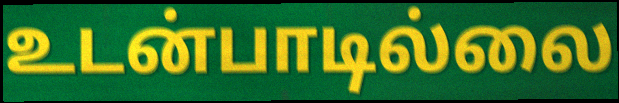
உடன்பாடில்லை